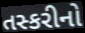
તસ્કરીનો